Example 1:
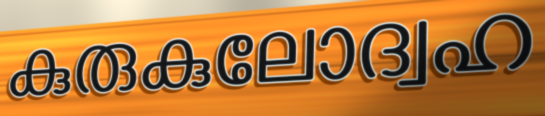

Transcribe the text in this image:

കുരുകുലോദ്വഹ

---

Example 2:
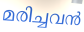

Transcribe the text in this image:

മരിച്ചവൻ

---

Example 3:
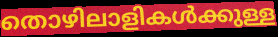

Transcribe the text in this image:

തൊഴിലാളികൾക്കുള്ള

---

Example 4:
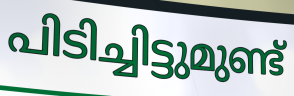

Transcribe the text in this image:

പിടിച്ചിട്ടുമുണ്ട്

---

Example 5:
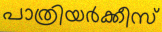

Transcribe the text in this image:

പാത്രിയർക്കീസ്